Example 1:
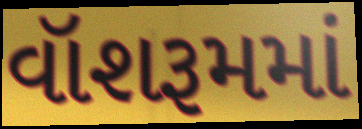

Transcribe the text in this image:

વૉશરૂમમાં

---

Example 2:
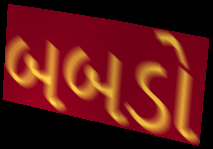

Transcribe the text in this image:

બબડો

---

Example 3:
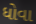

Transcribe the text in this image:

ધોવા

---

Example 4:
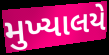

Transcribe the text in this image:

મુખ્યાલયે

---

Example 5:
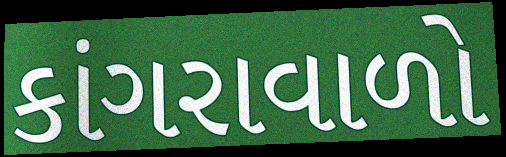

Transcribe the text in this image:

કાંગરાવાળો